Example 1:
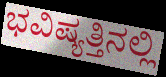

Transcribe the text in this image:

ಭವಿಷ್ಯತ್ತಿನಲ್ಲಿ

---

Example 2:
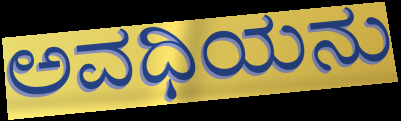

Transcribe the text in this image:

ಅವಧಿಯನು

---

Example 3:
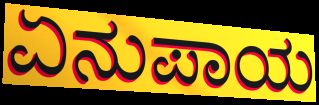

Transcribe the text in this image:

ಏನುಪಾಯ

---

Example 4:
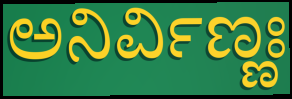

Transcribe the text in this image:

ಅನಿರ್ವಿಣ್ಣಃ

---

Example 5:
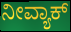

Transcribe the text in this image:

ನೀವ್ಯಾಕ್